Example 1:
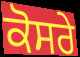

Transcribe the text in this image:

ਕੋਸਰੇ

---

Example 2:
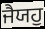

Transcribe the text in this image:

ਜੈਯਹੁ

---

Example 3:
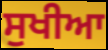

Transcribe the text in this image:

ਸੁਖੀਆ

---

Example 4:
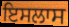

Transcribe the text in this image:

ਇਸਲਾਸ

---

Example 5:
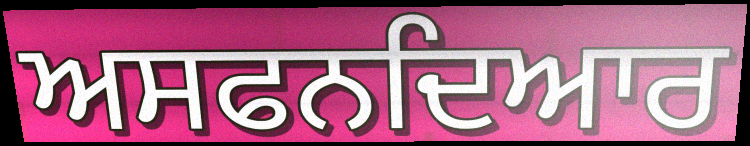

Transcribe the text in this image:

ਅਸਫਨਦਿਆਰ